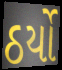
ઠર્યો